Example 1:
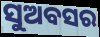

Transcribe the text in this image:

ସୁଅବସର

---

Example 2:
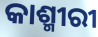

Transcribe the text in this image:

କାଶ୍ମୀରୀ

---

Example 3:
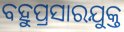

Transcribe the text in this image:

ବହୁପ୍ରସାରଯୁକ୍ତ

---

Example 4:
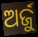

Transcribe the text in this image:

ଅର୍ଜୁ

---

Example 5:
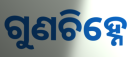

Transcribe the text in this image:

ଗୁଣଚିହ୍ନେ